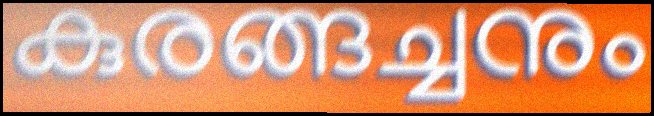
കുരങ്ങച്ചനും